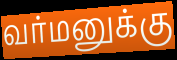
வர்மனுக்கு